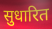
सुधारित